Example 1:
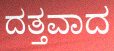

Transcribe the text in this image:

ದತ್ತವಾದ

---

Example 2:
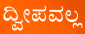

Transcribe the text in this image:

ದ್ವೀಪವಲ್ಲ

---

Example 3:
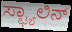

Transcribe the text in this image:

ಸ್ಟ್ಯಾಲಿನ್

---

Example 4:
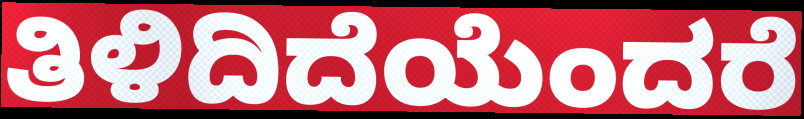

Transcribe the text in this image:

ತಿಳಿದಿದೆಯೆಂದರೆ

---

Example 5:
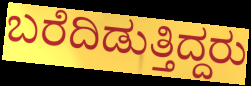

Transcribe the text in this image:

ಬರೆದಿಡುತ್ತಿದ್ದರು